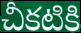
చీకటికి